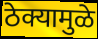
ठेक्यामुळे